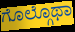
ಗೊಲ್ಗೊಥಾ